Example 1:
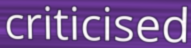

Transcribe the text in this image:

criticised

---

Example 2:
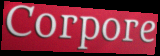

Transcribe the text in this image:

Corpore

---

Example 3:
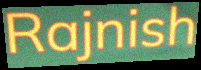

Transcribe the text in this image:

Rajnish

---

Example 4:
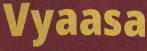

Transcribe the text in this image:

Vyaasa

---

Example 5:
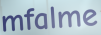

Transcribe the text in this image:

mfalme